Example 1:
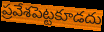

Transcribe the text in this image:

ప్రవేశపెట్టకూడదు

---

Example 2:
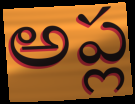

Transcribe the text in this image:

అప్ల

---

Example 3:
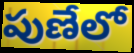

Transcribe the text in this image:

పుణేలో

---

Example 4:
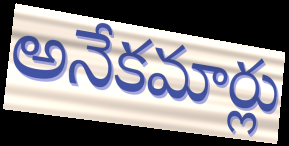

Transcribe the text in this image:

అనేకమార్లు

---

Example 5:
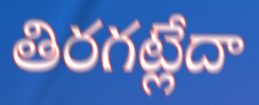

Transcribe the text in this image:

తిరగట్లేదా